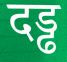
दड्ढ